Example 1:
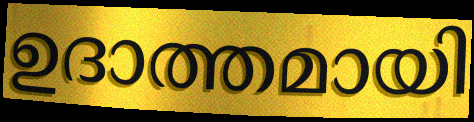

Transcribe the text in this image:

ഉദാത്തമായി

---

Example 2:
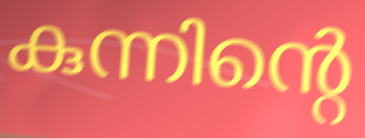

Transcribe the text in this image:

കുന്നിന്റെ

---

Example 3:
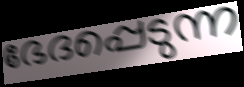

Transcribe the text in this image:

ഭേദപ്പെടുന്ന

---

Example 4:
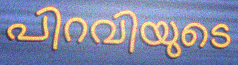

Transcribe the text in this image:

പിറവിയുടെ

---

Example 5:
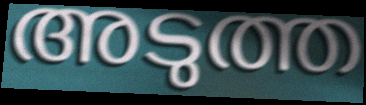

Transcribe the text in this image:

അടുത്ത